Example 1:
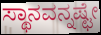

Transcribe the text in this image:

ಸ್ಥಾನವನ್ನಷ್ಟೇ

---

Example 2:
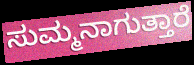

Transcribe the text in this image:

ಸುಮ್ಮನಾಗುತ್ತಾರೆ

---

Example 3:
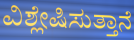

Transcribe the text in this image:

ವಿಶ್ಲೇಷಿಸುತ್ತಾನೆ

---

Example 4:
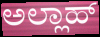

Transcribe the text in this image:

ಅಲ್ಲಾಹ್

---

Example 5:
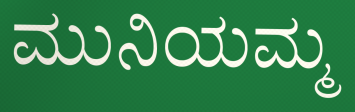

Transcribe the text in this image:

ಮುನಿಯಮ್ಮ